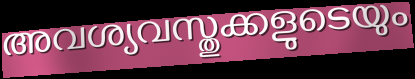
അവശ്യവസ്തുക്കളുടെയും